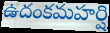
ఉదంకమహర్షి